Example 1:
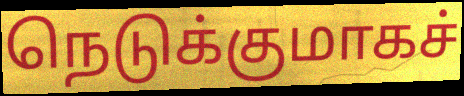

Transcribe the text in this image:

நெடுக்குமாகச்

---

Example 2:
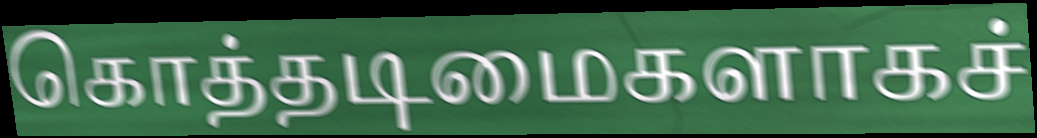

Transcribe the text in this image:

கொத்தடிமைகளாகச்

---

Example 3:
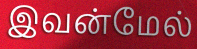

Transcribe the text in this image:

இவன்மேல்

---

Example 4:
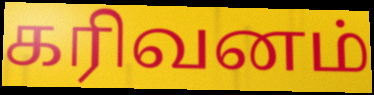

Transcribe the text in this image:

கரிவனம்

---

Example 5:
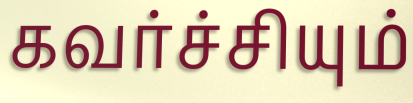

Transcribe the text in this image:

கவர்ச்சியும்